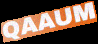
QAAUM